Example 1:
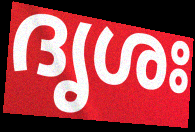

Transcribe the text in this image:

ദൃശഃ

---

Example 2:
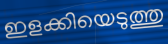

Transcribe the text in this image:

ഇളക്കിയെടുത്തു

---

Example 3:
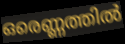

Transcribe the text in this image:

ഒരെണ്ണത്തിൽ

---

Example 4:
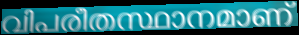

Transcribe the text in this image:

വിപരീതസ്ഥാനമാണ്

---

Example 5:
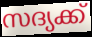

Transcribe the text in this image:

സദ്യക്ക്